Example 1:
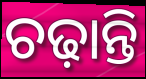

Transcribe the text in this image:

ଚଢ଼ାନ୍ତି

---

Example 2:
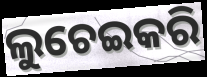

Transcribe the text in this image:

ଲୁଚେଇକରି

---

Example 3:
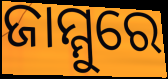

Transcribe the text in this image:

ଜାମ୍ମୁରେ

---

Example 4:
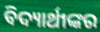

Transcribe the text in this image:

ବିଦ୍ୟାର୍ଥୀଙ୍କର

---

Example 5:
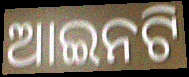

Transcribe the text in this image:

ଆଇନଟି